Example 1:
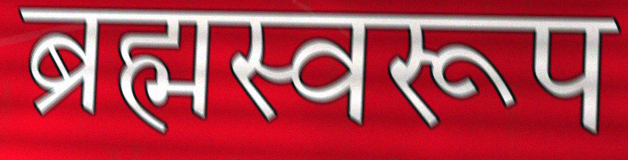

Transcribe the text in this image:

ब्रह्मस्वरूप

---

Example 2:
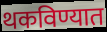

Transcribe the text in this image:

थकविण्यात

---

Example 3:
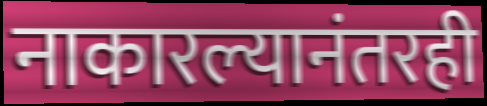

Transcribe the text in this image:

नाकारल्यानंतरही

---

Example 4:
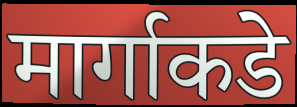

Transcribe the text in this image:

मार्गाकडे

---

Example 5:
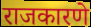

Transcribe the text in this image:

राजकारणे